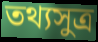
তথ্যসুত্র